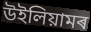
উইলিয়ামৰ